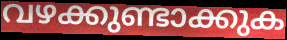
വഴക്കുണ്ടാക്കുക